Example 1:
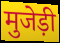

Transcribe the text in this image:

मुजेड़ी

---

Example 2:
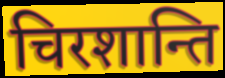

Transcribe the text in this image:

चिरशान्ति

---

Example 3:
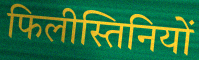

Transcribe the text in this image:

फिलीस्तिनियों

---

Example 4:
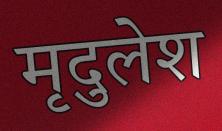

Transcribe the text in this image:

मृदुलेश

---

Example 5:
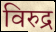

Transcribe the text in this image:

विरुद्र